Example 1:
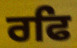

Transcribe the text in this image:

ਰਫਿ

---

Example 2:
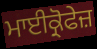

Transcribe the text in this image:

ਮਾਈਕ੍ਰੋਫੇਜ਼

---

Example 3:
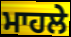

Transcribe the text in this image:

ਮਾਹਲੇ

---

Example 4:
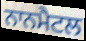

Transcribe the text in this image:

ਨਾਨਮੈਟਲ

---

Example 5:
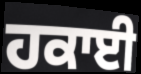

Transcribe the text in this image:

ਹਕਾਈ